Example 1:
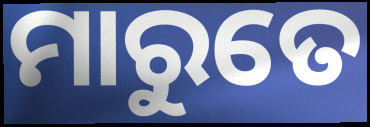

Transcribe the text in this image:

ମାରୁତେ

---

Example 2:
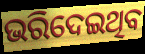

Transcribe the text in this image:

ଭରିଦେଇଥିବ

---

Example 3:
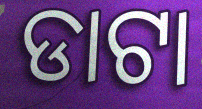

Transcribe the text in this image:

ଡାଟା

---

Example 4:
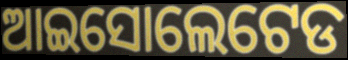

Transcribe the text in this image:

ଆଇସୋଲେଟେଡ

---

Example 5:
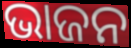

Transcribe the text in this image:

ଭାଜନ